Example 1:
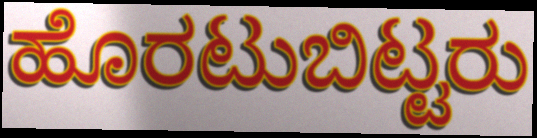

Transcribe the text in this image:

ಹೊರಟುಬಿಟ್ಟರು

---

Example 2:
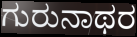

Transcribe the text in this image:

ಗುರುನಾಥರ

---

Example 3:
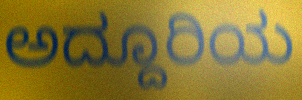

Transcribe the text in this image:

ಅದ್ದೂರಿಯ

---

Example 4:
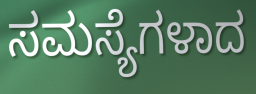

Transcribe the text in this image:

ಸಮಸ್ಯೆಗಳಾದ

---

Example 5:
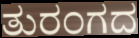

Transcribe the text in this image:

ತುರಂಗದ